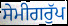
ਸੇਮੀਗਰੁੱਪ